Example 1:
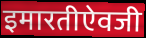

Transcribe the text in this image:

इमारतीऐवजी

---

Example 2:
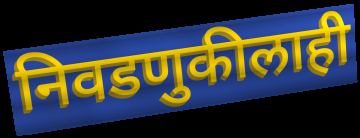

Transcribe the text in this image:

निवडणुकीलाही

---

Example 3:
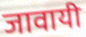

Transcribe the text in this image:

जावायी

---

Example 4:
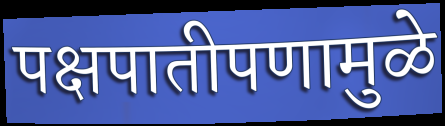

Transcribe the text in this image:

पक्षपातीपणामुळे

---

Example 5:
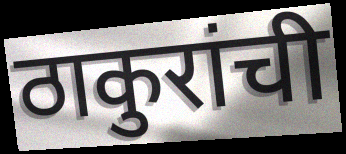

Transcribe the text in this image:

ठाकुरांची